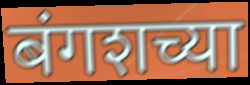
बंगशच्या